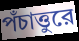
পঁচাত্তুরে